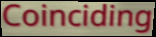
Coinciding